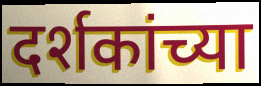
दर्शकांच्या